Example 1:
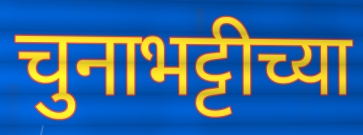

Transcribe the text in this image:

चुनाभट्टीच्या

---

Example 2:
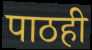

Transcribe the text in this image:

पाठही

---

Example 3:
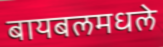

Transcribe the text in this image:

बायबलमधले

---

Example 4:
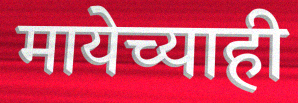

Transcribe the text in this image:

मायेच्याही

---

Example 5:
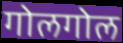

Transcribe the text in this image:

गोलगोल